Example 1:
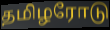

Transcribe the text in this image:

தமிழரோடு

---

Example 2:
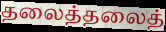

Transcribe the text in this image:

தலைத்தலைத்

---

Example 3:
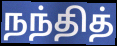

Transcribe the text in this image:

நந்தித்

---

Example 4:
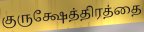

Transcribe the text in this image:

குருக்ஷேத்திரத்தை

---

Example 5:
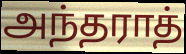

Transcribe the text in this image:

அந்தராத்